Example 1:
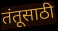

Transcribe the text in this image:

तंतूसाठी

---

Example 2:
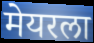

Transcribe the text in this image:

मेयरला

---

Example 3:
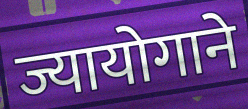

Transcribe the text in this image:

ज्यायोगाने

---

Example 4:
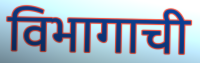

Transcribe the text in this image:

विभागाची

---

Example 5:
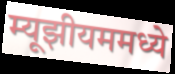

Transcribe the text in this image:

म्यूझीयममध्ये